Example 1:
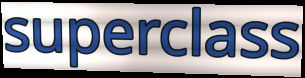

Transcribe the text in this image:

superclass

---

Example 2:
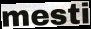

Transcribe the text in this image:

mesti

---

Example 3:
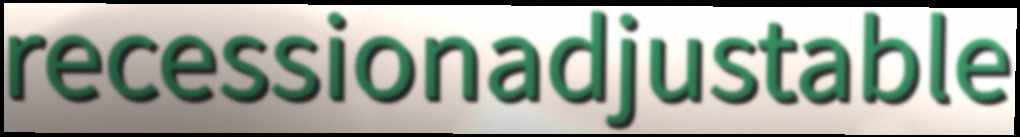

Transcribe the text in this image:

recessionadjustable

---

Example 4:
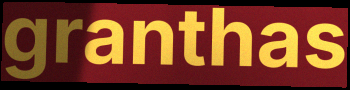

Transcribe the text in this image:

granthas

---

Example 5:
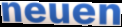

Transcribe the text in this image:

neuen